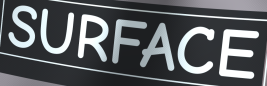
SURFACE